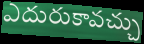
ఎదురుకావచ్చు